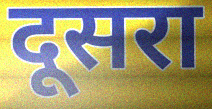
दूसरा